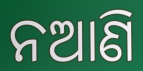
ନଆଣି